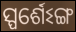
ସ୍ପର୍ଶେଽଙ୍ଗ